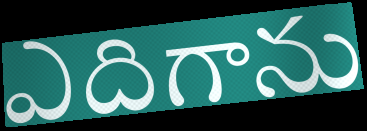
ఎదిగాను